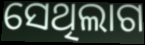
ସେଥିଲାଗ